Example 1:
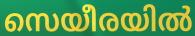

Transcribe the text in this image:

സെയീരയിൽ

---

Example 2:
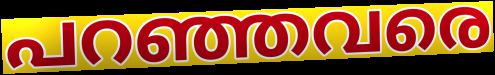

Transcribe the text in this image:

പറഞ്ഞവരെ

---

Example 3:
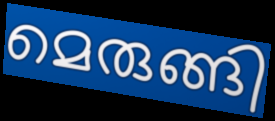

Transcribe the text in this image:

മെരുങ്ങി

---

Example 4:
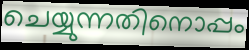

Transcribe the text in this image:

ചെയ്യുന്നതിനൊപ്പം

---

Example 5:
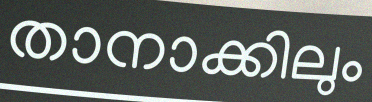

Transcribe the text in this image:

താനാക്കിലും